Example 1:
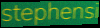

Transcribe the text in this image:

stephensi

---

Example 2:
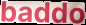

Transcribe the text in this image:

baddo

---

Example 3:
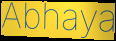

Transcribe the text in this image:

Abhaya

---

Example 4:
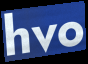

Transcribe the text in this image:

hvo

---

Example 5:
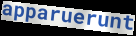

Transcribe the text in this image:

apparuerunt